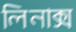
লিনাক্স